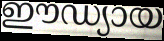
ഈഡ്യായ